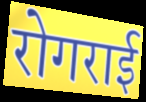
रोगराई